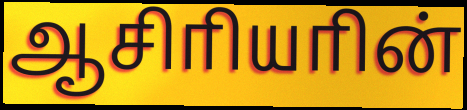
ஆசிரியரின்